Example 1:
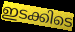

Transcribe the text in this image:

ഇടക്കിടെ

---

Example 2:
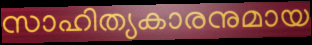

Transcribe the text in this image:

സാഹിത്യകാരനുമായ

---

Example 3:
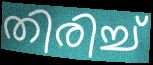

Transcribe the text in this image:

തിരിച്ച്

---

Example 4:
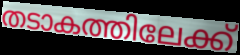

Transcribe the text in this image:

തടാകത്തിലേക്ക്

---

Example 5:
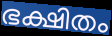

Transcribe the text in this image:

ഭക്ഷിതം